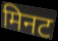
मिनट